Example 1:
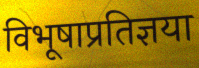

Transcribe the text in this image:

विभूषाप्रतिज्ञया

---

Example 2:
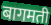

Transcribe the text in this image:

बागमती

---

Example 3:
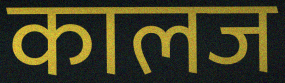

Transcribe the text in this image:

कालज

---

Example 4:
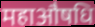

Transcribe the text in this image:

महाऔषधि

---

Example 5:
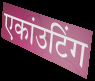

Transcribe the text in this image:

एकांउटिंग